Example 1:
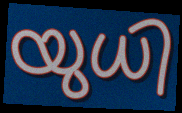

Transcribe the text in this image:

യുധി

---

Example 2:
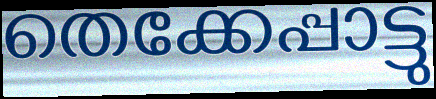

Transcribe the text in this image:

തെക്കേപ്പാട്ടു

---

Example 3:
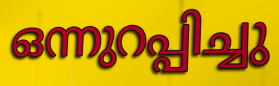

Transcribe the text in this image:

ഒന്നുറപ്പിച്ചു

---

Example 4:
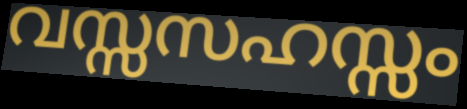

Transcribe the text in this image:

വസ്സസഹസ്സം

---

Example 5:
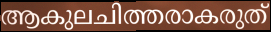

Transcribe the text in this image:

ആകുലചിത്തരാകരുത്